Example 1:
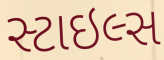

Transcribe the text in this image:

સ્ટાઇલ્સ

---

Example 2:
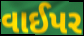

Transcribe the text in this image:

વાઈપર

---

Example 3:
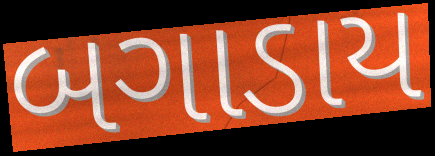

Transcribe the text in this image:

બગાડાય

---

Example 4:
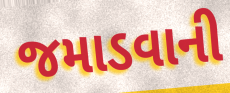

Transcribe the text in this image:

જમાડવાની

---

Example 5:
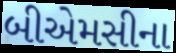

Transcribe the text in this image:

બીએમસીના